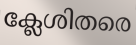
ക്ലേശിതരെ